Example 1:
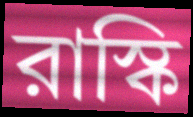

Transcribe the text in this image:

রাস্কি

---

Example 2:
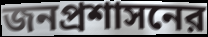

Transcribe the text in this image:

জনপ্রশাসনের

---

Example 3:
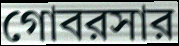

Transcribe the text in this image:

গোবরসার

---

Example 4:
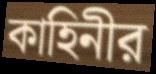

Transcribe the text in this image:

কাহিনীর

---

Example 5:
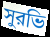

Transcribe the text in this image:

সুরভি